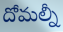
దోమల్నీ